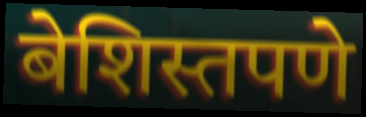
बेशिस्तपणे